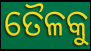
ତୈଳକୁ